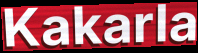
Kakarla